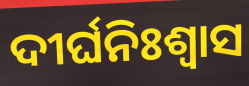
ଦୀର୍ଘନିଃଶ୍ବାସ